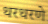
थरथरणे